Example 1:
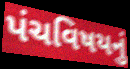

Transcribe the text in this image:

પંચવિષયનું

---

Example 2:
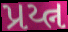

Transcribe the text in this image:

પ્રય્ત્ન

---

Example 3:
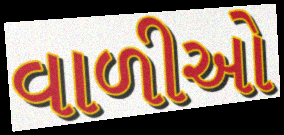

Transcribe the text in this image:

વાળીઓ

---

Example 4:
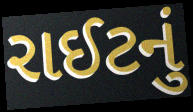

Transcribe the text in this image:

રાઈટનું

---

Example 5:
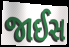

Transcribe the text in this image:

જાઈસ